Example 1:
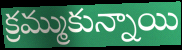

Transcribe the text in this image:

క్రమ్ముకున్నాయి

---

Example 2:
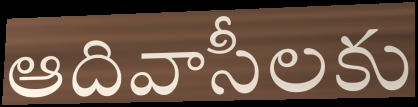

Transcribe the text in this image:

ఆదివాసీలకు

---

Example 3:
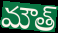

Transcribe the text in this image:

మౌత్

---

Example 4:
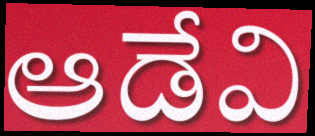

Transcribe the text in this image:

ఆడేవి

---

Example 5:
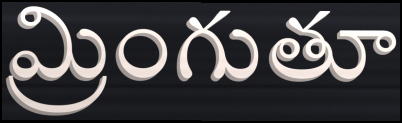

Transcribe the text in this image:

మ్రింగుతూ